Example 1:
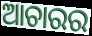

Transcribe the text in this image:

ଆଚାରର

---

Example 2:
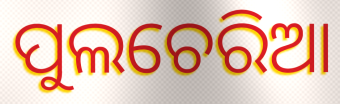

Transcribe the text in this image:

ପୁଲଚେରିଆ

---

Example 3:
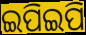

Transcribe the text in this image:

ଇପିଇପି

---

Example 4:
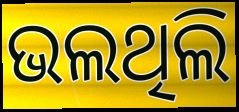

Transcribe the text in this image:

ଭଲଥିଲି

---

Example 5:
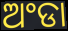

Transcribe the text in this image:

ଅଂଡା